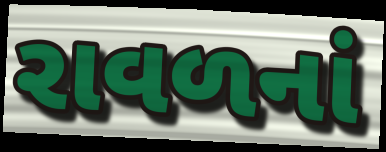
રાવળનાં